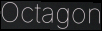
Octagon